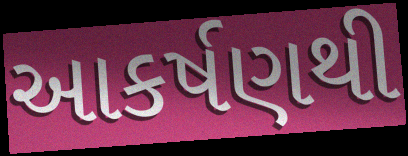
આકર્ષણથી